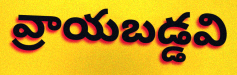
వ్రాయబడ్డవి